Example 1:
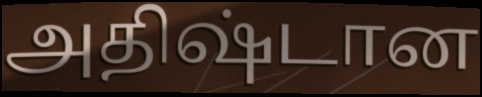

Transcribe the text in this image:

அதிஷ்டான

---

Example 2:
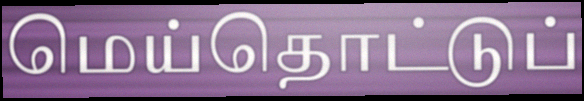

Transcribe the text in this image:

மெய்தொட்டுப்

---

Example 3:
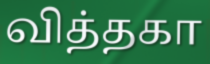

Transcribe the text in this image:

வித்தகா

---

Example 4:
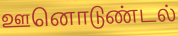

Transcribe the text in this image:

ஊனொடுண்டல்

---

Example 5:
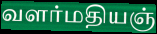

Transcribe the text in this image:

வளர்மதியஞ்